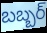
బబ్బర్